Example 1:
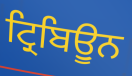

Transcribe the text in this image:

ਟ੍ਰਿਬਿਉੂਨ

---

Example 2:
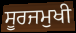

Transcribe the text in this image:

ਸੂਰਜਮੁਖੀ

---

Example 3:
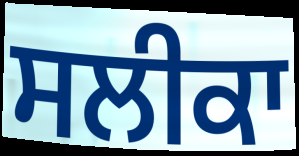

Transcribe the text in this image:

ਸਲੀਕਾ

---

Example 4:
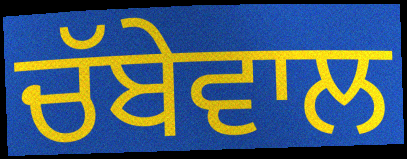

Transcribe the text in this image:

ਚੱਬੇਵਾਲ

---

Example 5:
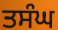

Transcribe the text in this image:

ਤਸੰਘ